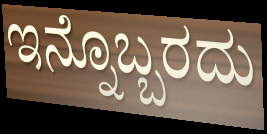
ಇನ್ನೊಬ್ಬರದು